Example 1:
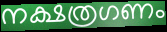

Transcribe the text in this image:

നക്ഷത്രഗണം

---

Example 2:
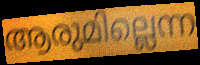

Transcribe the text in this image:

ആരുമില്ലെന്ന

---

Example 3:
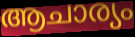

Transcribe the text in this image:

ആചാര്യം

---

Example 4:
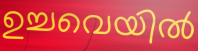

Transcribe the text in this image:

ഉച്ചവെയിൽ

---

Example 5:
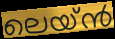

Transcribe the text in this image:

ലെയ്ൻ